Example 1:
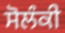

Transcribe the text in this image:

ਸੋਲੰਕੀ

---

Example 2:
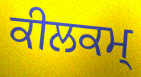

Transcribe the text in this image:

ਕੀਲਕਮ੍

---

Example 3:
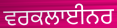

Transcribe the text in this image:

ਵਰਕਲਾਈਨਰ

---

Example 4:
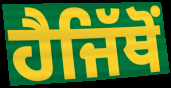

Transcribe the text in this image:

ਹੈਜਿੱਥੋਂ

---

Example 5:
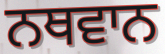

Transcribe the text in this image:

ਨਥਵਾਨ